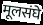
मूलसंघे